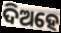
ଦିଅହେ